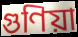
গুণিয়া